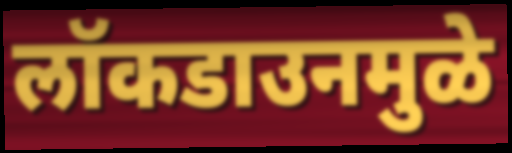
लॉकडाउनमुळे